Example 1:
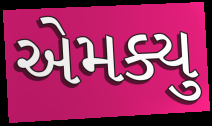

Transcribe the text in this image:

એમક્યુ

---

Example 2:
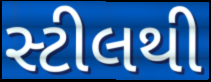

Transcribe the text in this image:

સ્ટીલથી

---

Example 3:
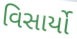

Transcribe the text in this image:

વિસાર્યો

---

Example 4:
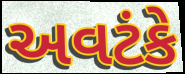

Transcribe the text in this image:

અવટંકે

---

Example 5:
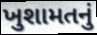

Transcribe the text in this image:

ખુશામતનું